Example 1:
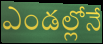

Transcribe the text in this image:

ఎండల్లోనే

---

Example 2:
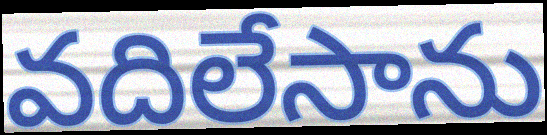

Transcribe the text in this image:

వదిలేసాను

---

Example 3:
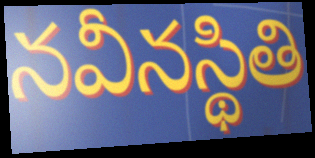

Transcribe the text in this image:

నవీనస్థితి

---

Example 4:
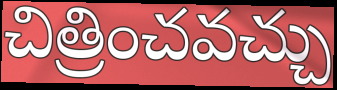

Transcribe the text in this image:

చిత్రించవచ్చు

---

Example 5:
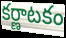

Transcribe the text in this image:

కర్ణాటకం